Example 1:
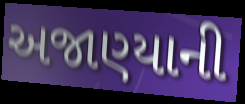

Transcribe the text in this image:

અજાણ્યાની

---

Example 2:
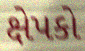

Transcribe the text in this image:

ક્ષેપકો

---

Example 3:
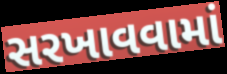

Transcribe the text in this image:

સરખાવવામાં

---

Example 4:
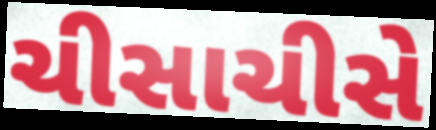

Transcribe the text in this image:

ચીસાચીસે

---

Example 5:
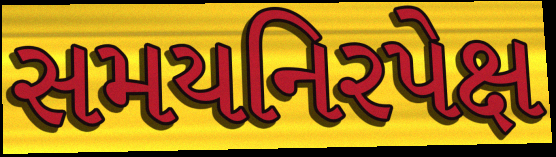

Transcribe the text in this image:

સમયનિરપેક્ષ